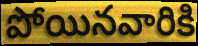
పోయినవారికి